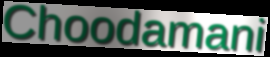
Choodamani